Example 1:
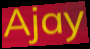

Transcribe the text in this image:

Ajay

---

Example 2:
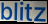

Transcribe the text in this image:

blitz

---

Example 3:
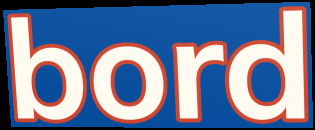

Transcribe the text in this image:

bord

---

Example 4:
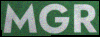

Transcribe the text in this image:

MGR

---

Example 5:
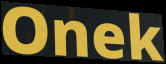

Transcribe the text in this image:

Onek